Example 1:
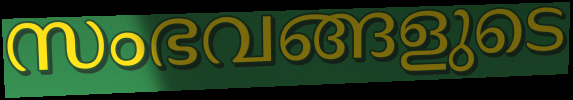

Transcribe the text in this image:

സംഭവങ്ങളുടെ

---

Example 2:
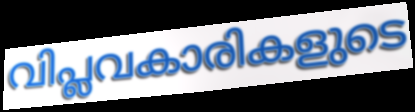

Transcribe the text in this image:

വിപ്ലവകാരികളുടെ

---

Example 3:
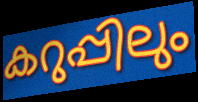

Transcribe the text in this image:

കറുപ്പിലും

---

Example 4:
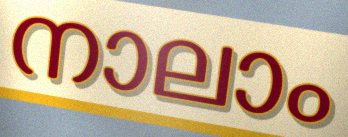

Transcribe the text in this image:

നാലാം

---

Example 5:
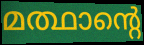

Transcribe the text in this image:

മത്ഥാന്റെ